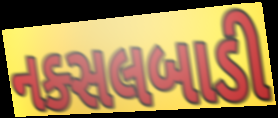
નક્સલબાડી